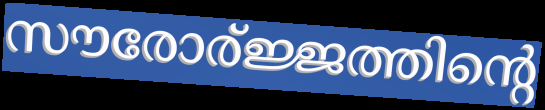
സൗരോര്ജ്ജത്തിന്റെ